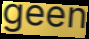
geen